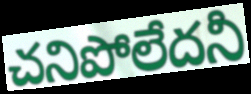
చనిపోలేదనీ